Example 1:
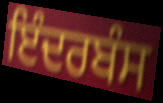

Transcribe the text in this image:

ਇੰਦਰਬੰਸ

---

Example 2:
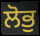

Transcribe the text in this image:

ਲੋਭੁ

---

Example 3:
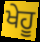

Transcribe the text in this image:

ਖੇਹੂ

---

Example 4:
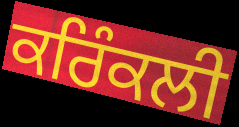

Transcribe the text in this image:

ਕਰਿੰਕਲੀ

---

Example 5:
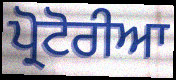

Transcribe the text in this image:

ਪ੍ਰੋਟੋਰੀਆ